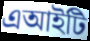
এআইটি